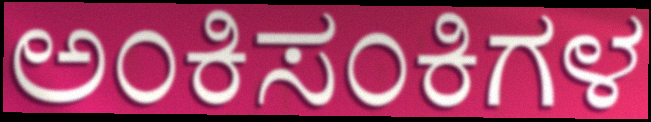
ಅಂಕಿಸಂಕಿಗಳ